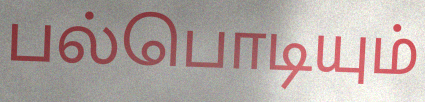
பல்பொடியும்